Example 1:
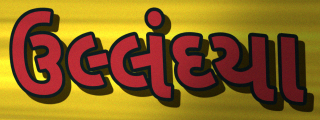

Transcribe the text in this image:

ઉલ્લંઘ્યા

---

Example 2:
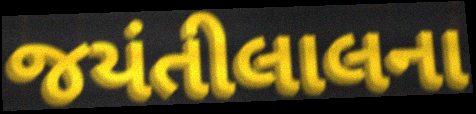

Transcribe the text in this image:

જયંતીલાલના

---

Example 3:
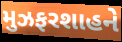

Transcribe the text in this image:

મુઝફરશાહને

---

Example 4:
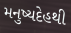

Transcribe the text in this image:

મનુષ્યદેહથી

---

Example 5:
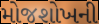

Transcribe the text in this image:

મોજશોખની